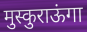
मुस्कुराऊंगा